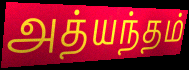
அத்யந்தம்